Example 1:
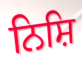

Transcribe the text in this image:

ਨਿਸ਼ਿ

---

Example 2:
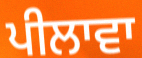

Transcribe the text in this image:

ਪੀਲਾਵਾ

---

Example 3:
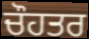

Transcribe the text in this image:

ਚੌਹਤਰ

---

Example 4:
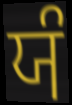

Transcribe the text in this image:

ਯੰ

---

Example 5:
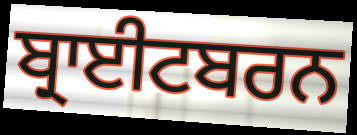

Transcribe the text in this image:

ਬ੍ਰਾਈਟਬਰਨ